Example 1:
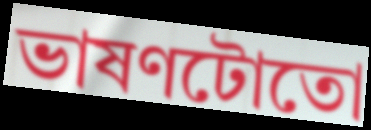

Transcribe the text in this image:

ভাষণটোতো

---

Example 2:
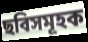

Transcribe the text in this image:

ছবিসমূহক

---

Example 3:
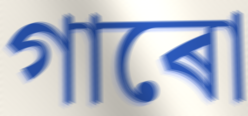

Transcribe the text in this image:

গাৰো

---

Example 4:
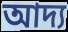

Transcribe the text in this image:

আদ্য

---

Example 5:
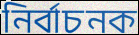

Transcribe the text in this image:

নিৰ্বাচনক